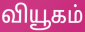
வியூகம்